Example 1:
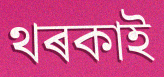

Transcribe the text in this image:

থৰকাই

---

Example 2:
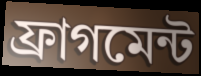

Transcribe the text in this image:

ফ্ৰাগমেন্ট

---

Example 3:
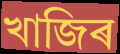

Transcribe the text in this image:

খাজিৰ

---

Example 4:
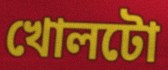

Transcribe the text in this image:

খোলটো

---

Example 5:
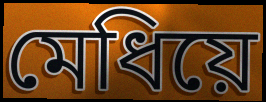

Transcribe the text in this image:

মেধিয়ে